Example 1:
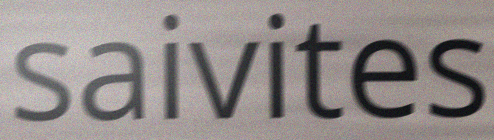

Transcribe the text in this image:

saivites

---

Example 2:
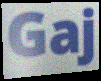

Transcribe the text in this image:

Gaj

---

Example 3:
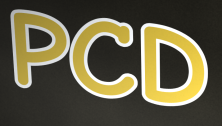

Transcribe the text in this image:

PCD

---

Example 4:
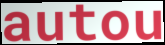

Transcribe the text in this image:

autou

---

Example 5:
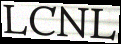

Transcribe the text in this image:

LCNL